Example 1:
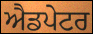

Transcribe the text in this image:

ਐਡਪੇਟਰ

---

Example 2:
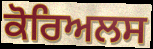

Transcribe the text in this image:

ਕੋਰਿਅਲਸ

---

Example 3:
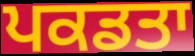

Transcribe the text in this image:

ਪਕਡਤਾ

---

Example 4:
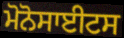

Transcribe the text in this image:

ਮੋਨੋਸਾਈਟਸ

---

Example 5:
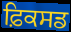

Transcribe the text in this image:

ਫ਼ਿਕਸਡ